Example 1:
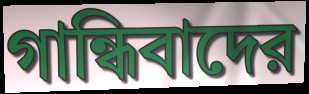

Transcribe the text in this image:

গান্ধিবাদের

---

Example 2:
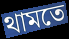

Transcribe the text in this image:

থামতে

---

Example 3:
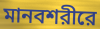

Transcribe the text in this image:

মানবশরীরে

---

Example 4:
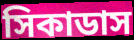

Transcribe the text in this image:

সিকাডাস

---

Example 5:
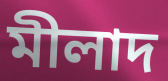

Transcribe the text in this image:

মীলাদ